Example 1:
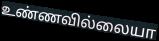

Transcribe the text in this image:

உண்ணவில்லையா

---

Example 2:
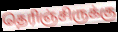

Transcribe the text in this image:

தெரிஞ்சிருக்கு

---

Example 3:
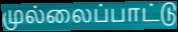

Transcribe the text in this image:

முல்லைப்பாட்டு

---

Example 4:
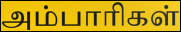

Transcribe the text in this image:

அம்பாரிகள்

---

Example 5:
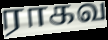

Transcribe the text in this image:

ராகவ